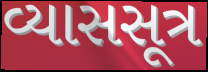
વ્યાસસૂત્ર